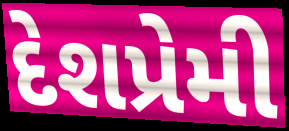
દેશપ્રેમી